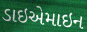
ડાઇએમાઇન